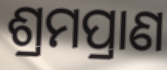
ଶ୍ରମପ୍ରାଣ